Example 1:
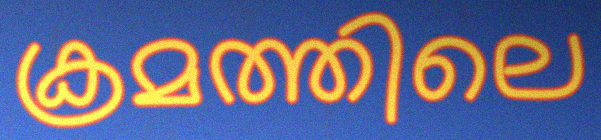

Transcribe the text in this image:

ക്രമത്തിലെ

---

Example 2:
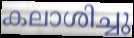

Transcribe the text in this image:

കലാശിച്ചു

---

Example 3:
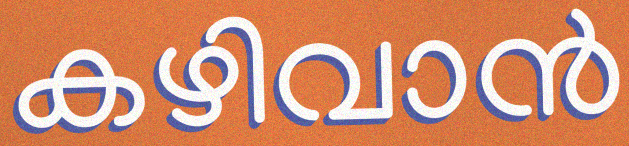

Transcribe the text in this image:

കഴിവാൻ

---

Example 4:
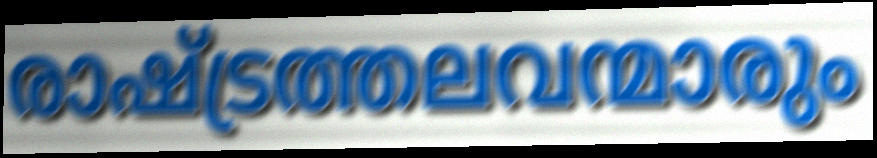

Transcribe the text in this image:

രാഷ്ട്രത്തലവന്മാരും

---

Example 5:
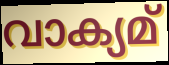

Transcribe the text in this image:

വാക്യമ്